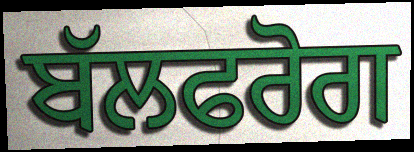
ਬੱਲਫਰੋਗ